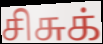
சிசுக்